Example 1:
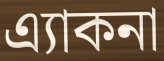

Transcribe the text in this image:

এ্যাকনা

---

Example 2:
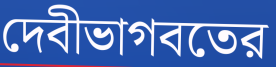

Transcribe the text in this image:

দেবীভাগবতের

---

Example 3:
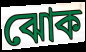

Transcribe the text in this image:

ঝোক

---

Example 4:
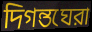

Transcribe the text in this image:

দিগন্তঘেরা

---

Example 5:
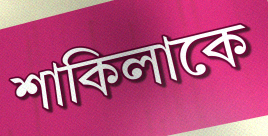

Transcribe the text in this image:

শাকিলাকে